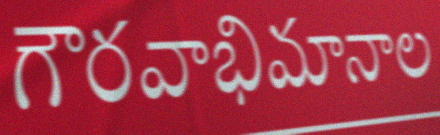
గౌరవాభిమానాల